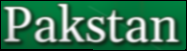
Pakstan